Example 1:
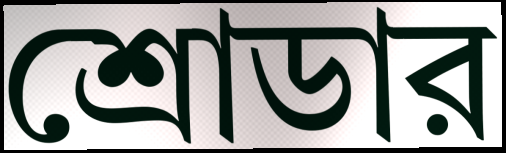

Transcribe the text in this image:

শ্রোডার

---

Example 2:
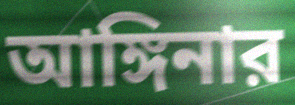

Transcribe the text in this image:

আঙ্গিনার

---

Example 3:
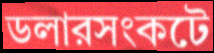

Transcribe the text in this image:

ডলারসংকটে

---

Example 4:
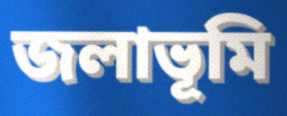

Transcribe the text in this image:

জলাভূমি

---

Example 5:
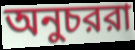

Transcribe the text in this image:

অনুচররা